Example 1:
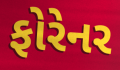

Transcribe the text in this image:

ફોરેનર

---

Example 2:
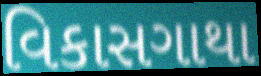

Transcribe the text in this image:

વિકાસગાથા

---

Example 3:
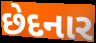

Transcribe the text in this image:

છેદનાર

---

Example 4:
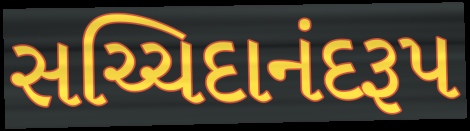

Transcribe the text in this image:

સચ્ચિદાનંદરૂપ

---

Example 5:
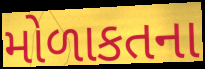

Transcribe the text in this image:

મોળાકતના